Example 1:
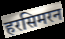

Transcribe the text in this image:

हरसिमरन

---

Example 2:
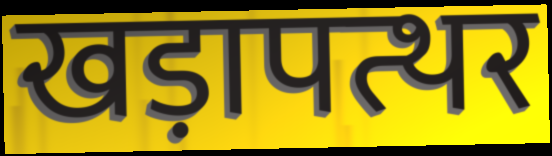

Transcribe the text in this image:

खड़ापत्थर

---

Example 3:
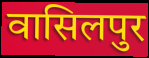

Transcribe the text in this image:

वासिलपुर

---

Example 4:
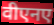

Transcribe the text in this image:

वीएनए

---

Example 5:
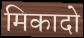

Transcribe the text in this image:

मिकादो